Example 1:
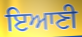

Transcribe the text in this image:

ਇਆਣੀ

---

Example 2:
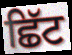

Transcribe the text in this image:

ਛਿੱਟ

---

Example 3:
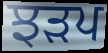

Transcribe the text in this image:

ਝੜਪ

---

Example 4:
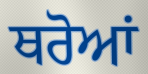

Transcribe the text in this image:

ਥਰੋਆਂ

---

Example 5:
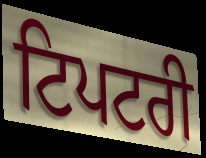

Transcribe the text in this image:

ਟਿਪਟਰੀ